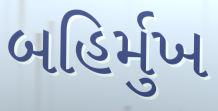
બહિર્મુખ